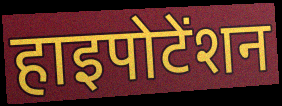
हाइपोटेंशन